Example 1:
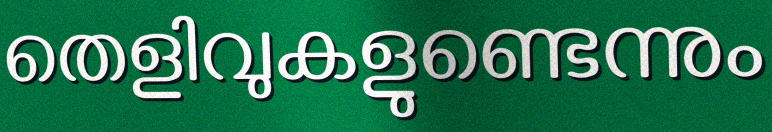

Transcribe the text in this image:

തെളിവുകളുണ്ടെന്നും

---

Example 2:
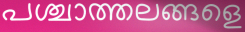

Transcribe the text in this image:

പശ്ചാത്തലങ്ങളെ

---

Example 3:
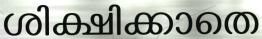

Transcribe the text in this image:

ശിക്ഷിക്കാതെ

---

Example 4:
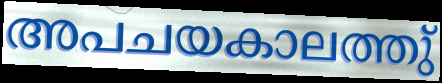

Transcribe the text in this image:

അപചയകാലത്തു്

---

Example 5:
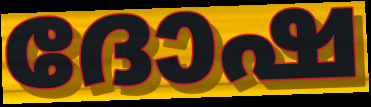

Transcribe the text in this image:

ദോഷ